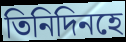
তিনিদিনহে